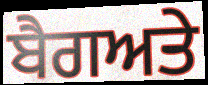
ਬੈਗਅਤੇ